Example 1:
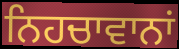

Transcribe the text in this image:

ਨਿਹਚਾਵਾਨਾਂ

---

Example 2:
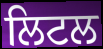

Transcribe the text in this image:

ਲਿਟਲ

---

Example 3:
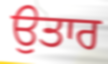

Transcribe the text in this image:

ਉਤਾਰ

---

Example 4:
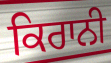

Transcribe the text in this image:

ਕਿਰਾਨੀ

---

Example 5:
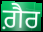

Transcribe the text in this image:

ਗ਼ੈਰ